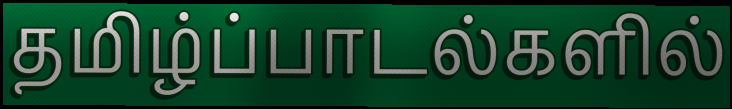
தமிழ்ப்பாடல்களில்